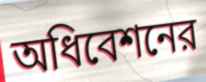
অধিবেশনের